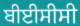
ਬੀਈਸੀਸੀ